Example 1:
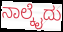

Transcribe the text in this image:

ನಾಲ್ಕೈದು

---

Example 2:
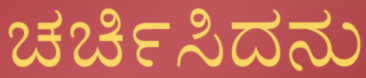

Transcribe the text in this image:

ಚರ್ಚಿಸಿದನು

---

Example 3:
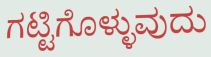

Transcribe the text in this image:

ಗಟ್ಟಿಗೊಳ್ಳುವುದು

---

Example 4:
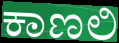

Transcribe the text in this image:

ಕಾಣಲಿ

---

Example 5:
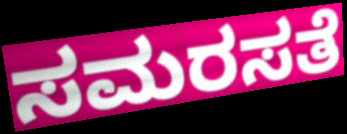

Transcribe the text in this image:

ಸಮರಸತೆ